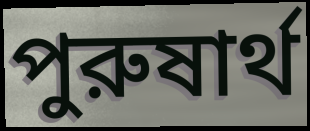
পুরুষার্থ